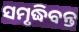
ସମୃଦ୍ଧିବନ୍ତ